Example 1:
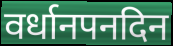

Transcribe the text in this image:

वर्धानपनदिन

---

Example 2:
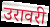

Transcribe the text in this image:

उरावरी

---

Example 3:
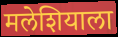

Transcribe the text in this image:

मलेशियाला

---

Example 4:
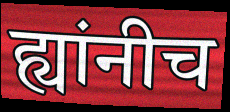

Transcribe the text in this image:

ह्यांनीच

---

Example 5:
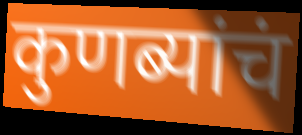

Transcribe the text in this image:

कुणब्यांचं